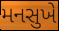
મનસુખે